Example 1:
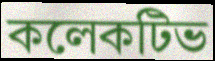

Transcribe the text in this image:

কলেকটিভ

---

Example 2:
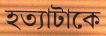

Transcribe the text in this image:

হত্যাটাকে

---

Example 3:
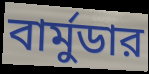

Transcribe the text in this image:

বার্মুডার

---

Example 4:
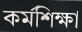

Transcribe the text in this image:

কর্মশিক্ষা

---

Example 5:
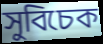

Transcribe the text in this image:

সুবিচেক